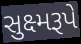
સુક્ષ્મરૂપે